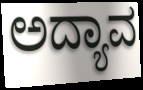
ಅದ್ಯಾವ